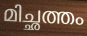
മിച്ഛത്തം